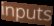
inputs